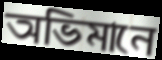
অভিমানে